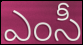
ఎంసీ